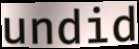
undid